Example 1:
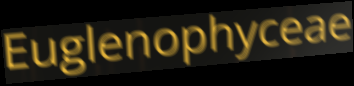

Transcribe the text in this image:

Euglenophyceae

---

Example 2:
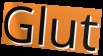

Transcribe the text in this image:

Glut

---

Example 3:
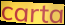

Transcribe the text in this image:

carta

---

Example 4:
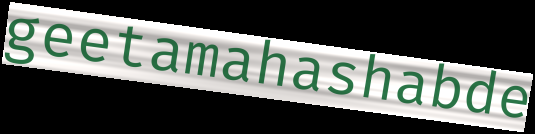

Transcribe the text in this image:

geetamahashabde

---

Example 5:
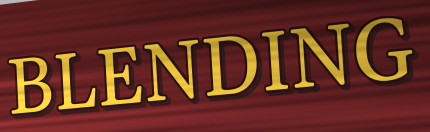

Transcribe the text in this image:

BLENDING